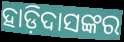
ହାଡ଼ିଦାସଙ୍କର